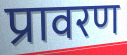
प्रावरण